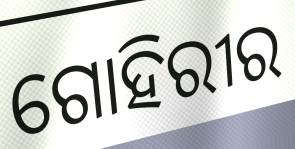
ଗୋହିରୀର